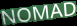
NOMAD